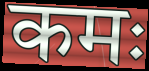
कमः